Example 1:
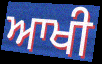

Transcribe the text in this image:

ਆਖੀ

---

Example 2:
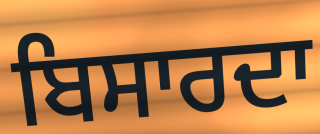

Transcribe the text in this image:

ਬਿਸਾਰਦਾ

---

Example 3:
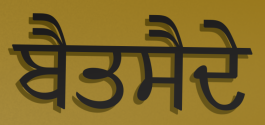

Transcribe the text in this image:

ਬੈਤਸੈਦੇ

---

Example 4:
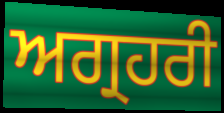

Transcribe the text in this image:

ਅਗ੍ਰਹਰੀ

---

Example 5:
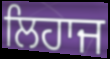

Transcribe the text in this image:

ਲਿਹਾਜ